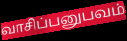
வாசிப்பனுபவம்